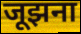
जूझना